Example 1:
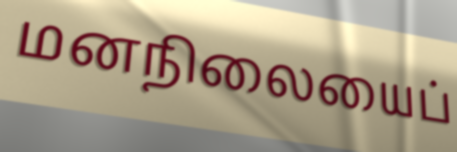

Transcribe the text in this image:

மனநிலையைப்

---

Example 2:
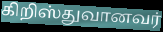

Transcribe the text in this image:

கிறிஸ்துவானவர்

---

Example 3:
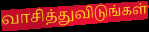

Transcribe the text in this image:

வாசித்துவிடுங்கள்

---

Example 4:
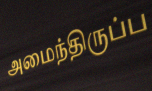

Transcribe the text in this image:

அமைந்திருப்ப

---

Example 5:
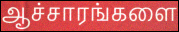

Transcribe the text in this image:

ஆச்சாரங்களை